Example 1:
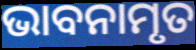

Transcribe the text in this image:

ଭାବନାମୃତ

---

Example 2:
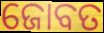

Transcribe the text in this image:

ଜୋବତ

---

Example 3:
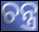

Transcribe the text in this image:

ଚନ୍ତ୍ର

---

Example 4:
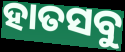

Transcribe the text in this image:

ହାତସବୁ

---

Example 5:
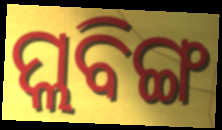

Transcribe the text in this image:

ପ୍ଲବିଙ୍ଗ